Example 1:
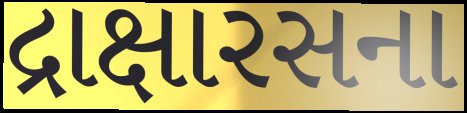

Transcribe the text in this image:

દ્રાક્ષારસના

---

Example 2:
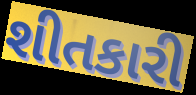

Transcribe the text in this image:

શીતકારી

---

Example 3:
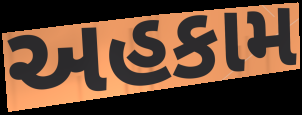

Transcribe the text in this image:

અહકામ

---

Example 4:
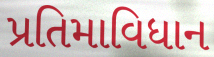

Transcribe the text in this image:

પ્રતિમાવિધાન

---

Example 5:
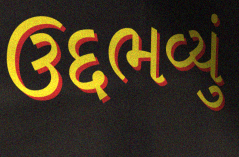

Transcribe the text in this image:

ઉદ્દભવ્યું